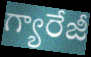
గ్యారేజీ